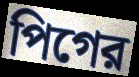
পিগের